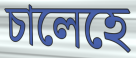
চালেহে